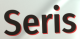
Seris